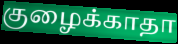
குழைக்காதா